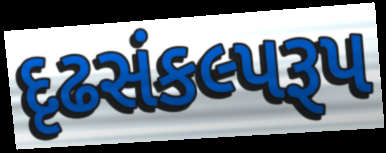
દૃઢસંકલ્પરૂપ